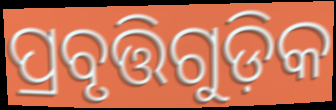
ପ୍ରବୃତ୍ତିଗୁଡ଼ିକ